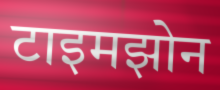
टाइमझोन